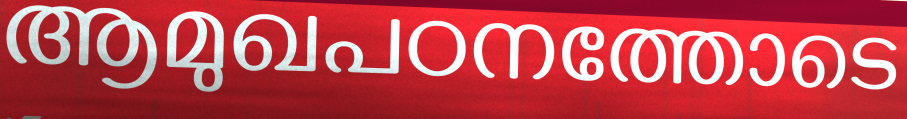
ആമുഖപഠനത്തോടെ